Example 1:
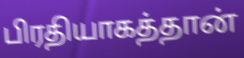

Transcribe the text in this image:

பிரதியாகத்தான்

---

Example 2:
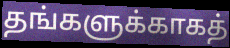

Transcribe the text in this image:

தங்களுக்காகத்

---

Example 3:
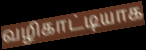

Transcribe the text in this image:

வழிகாட்டியாக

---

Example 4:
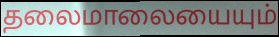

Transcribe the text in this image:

தலைமாலையையும்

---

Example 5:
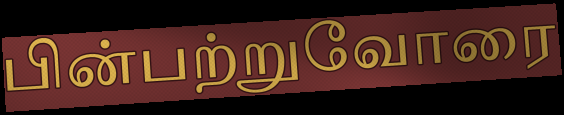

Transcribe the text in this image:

பின்பற்றுவோரை